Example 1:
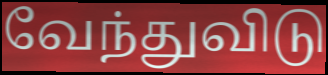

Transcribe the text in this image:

வேந்துவிடு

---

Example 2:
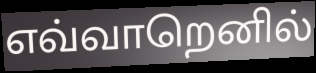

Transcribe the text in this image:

எவ்வாறெனில்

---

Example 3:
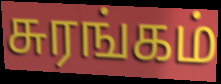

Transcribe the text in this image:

சுரங்கம்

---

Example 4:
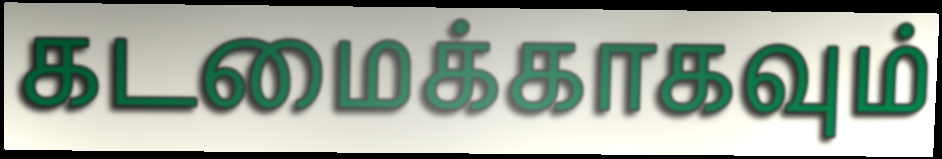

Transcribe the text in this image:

கடமைக்காகவும்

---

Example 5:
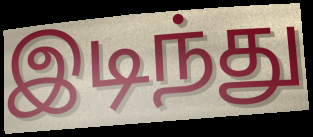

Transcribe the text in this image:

இடிந்து